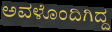
ಅವಳೊಂದಿಗಿದ್ದ